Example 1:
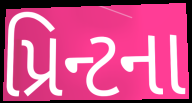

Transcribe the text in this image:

પ્રિન્ટના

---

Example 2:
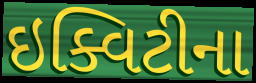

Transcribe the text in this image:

ઇક્વિટીના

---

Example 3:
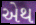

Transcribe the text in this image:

એથ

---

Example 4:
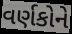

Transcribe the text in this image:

વર્ણકોને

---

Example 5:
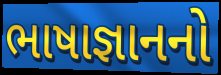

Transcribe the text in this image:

ભાષાજ્ઞાનનો